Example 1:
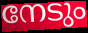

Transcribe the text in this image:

നേടും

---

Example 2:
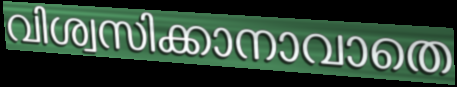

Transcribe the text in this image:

വിശ്വസിക്കാനാവാതെ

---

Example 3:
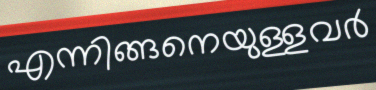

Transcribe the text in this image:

എന്നിങ്ങനെയുള്ളവർ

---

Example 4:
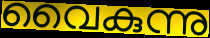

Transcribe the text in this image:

വൈകുന്നു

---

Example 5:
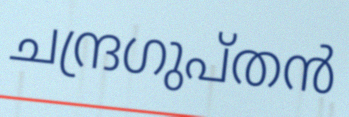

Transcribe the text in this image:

ചന്ദ്രഗുപ്തൻ